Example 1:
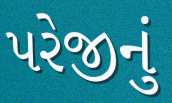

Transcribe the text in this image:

પરેજીનું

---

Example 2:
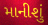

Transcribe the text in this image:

માનીશું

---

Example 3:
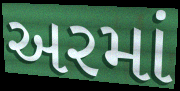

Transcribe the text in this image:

અરમાં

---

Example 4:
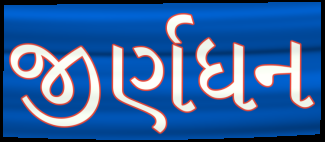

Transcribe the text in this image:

જીર્ણધન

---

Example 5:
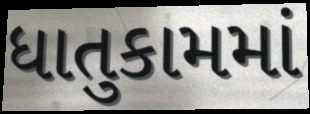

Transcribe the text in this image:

ધાતુકામમાં